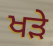
ਖੜੇ